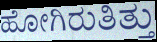
ಹೋಗಿರುತಿತ್ತು